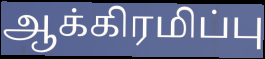
ஆக்கிரமிப்பு